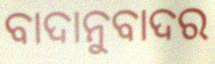
ବାଦାନୁବାଦର